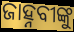
ଜାହ୍ନବୀଙ୍କୁ